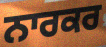
ਨਾਰਕਰ